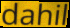
dahil